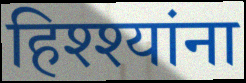
हिश्श्यांना